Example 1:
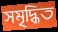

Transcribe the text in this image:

সমৃদ্ধিত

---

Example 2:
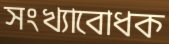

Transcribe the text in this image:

সংখ্যাবোধক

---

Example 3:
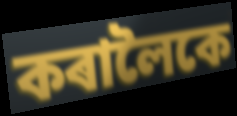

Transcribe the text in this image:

কৰালৈকে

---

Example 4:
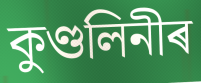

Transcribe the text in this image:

কুণ্ডলিনীৰ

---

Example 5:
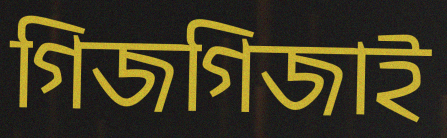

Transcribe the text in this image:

গিজগিজাই